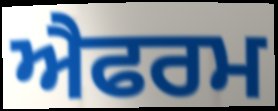
ਐਫਰਮ